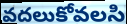
వదలుకోవలసి